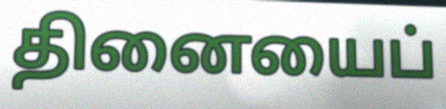
தினையைப்